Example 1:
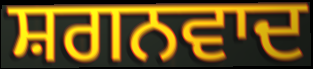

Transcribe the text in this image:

ਸ਼ਗਨਵਾਦ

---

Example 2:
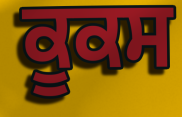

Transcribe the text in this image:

ਕੂਕਸ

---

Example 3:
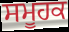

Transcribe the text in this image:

ਸਮੂਹਕ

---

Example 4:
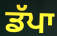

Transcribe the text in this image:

ਡੱਪਾ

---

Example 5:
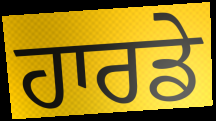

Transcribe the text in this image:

ਹਾਰਡੇ